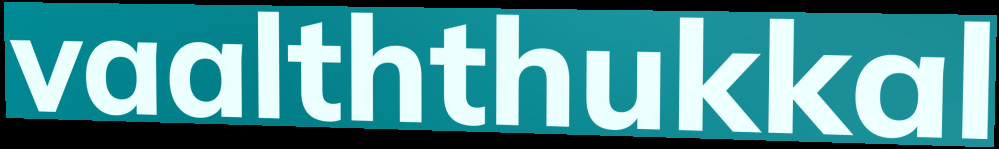
vaalththukkal